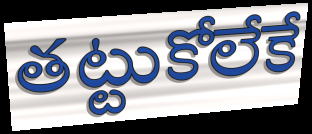
తట్టుకోలేకే